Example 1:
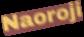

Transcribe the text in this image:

Naoroji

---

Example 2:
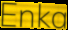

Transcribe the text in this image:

Enka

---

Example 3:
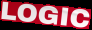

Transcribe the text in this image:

LOGIC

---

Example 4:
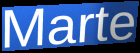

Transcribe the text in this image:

Marte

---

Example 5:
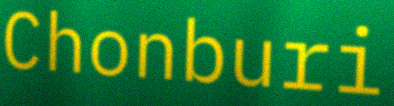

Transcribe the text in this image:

Chonburi